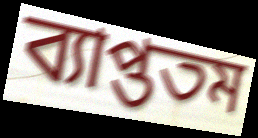
ব্যাপ্ততম